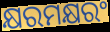
କ୍ଷରମକ୍ଷରଂ